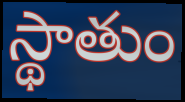
స్థాతుం